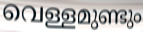
വെള്ളമുണ്ടും